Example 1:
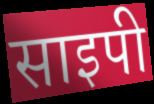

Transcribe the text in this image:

साइपी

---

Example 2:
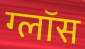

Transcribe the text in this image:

ग्लॉस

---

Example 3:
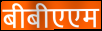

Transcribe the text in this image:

बीबीएएम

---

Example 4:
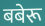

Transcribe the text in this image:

बबेरू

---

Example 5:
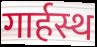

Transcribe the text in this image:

गार्हस्थ